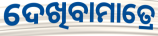
ଦେଖିବାମାତ୍ରେ